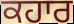
ਕਹਾਰ